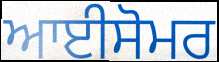
ਆਈਸੋਮਰ